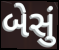
બેસું